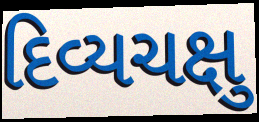
દિવ્યચક્ષુ